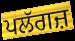
ਪਲੱਗਜ਼